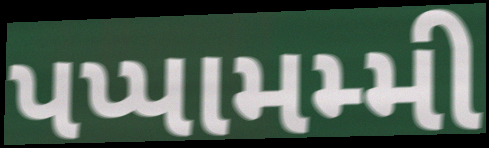
પપ્પામમ્મી